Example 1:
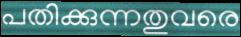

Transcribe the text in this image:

പതിക്കുന്നതുവരെ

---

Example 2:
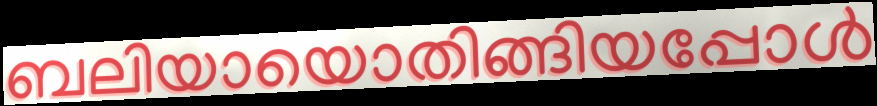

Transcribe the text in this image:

ബലിയായൊതിങ്ങിയപ്പോൾ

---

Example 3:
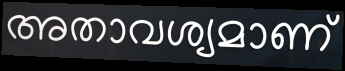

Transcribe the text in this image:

അതാവശ്യമാണ്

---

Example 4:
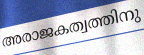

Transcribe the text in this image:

അരാജകത്വത്തിനു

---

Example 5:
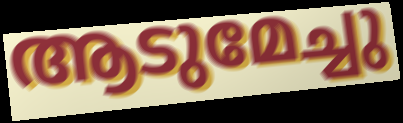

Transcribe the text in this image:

ആടുമേച്ചു